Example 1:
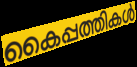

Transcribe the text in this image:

കൈപ്പത്തികൾ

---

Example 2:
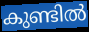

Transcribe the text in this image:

കുണ്ടിൽ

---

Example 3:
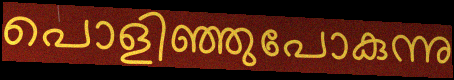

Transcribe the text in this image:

പൊളിഞ്ഞുപോകുന്നു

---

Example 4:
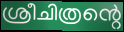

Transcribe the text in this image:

ശ്രീചിത്രന്റെ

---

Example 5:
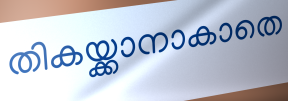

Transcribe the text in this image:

തികയ്ക്കാനാകാതെ